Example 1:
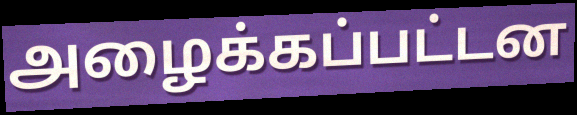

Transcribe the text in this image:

அழைக்கப்பட்டன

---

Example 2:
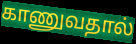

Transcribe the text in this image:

காணுவதால்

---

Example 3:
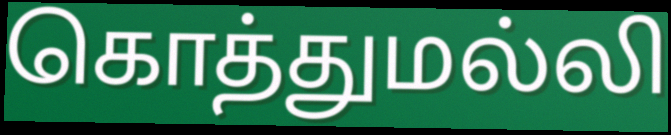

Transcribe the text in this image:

கொத்துமல்லி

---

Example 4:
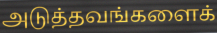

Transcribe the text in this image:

அடுத்தவங்களைக்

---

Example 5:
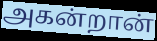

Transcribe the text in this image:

அகன்றான்